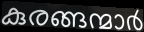
കുരങ്ങന്മാർ